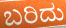
ಬರಿದು